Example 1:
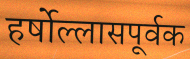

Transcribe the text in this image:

हर्षोल्लासपूर्वक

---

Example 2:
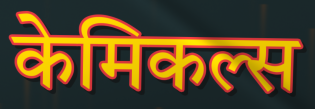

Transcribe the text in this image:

केमिकल्स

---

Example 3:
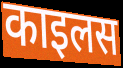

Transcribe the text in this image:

काइलस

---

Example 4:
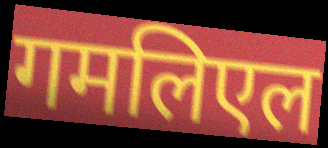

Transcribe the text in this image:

गमलिएल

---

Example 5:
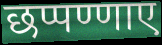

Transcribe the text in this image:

छप्पण्णाए